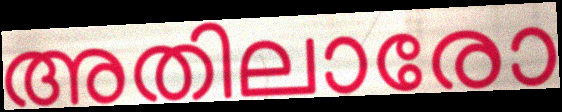
അതിലാരോ